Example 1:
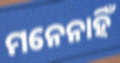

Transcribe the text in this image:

ମନେନାହିଁ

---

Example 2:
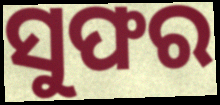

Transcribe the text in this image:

ସୁଫର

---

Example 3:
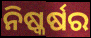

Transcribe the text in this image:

ନିଷ୍କର୍ଷର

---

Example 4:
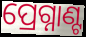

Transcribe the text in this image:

ପ୍ରେଗ୍ନାଣ୍ଟ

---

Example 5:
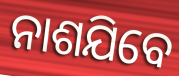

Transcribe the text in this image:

ନାଶଯିବେ